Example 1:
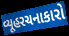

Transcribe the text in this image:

વ્યૂહરચનાકારો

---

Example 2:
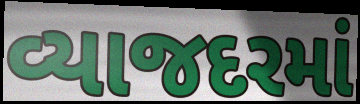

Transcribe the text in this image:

વ્યાજદરમાં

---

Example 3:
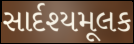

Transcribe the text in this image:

સાર્દશ્યમૂલક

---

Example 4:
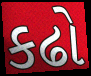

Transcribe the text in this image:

કઢો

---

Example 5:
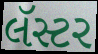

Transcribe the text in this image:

લૅસ્ટર